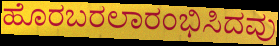
ಹೊರಬರಲಾರಂಭಿಸಿದವು